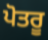
ਪੋਤਰੂ